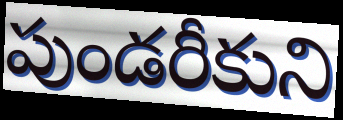
పుండరీకుని